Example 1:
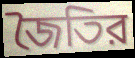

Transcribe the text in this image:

জৈতির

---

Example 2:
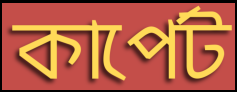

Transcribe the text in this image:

কার্পেট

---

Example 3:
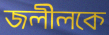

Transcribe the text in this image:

জলীলকে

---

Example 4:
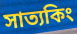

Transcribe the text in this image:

সাত্যকিং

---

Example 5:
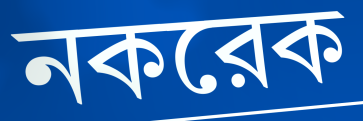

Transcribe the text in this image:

নকরেক